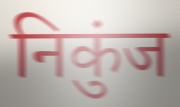
निकुंज